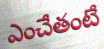
ఎంచేతంటే